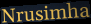
Nrusimha